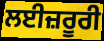
ਲਈਜ਼ਰੂਰੀ